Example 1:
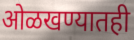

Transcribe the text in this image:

ओळखण्यातही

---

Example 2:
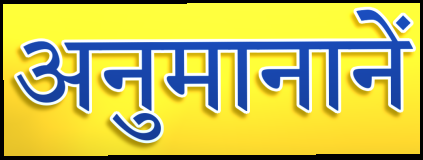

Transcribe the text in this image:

अनुमानानें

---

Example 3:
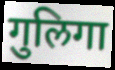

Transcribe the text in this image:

गुलिगा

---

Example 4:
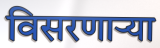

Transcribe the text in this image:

विसरणाऱ्या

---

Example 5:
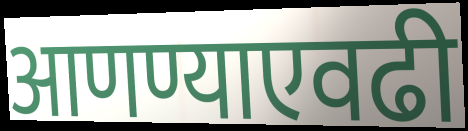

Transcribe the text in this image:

आणण्याएवढी